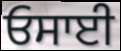
ਓਸਾਈ